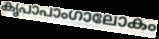
കൃപാപാംഗാലോകം